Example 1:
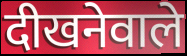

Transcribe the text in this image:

दीखनेवाले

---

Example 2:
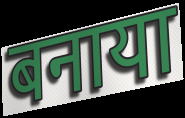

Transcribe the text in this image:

बनाया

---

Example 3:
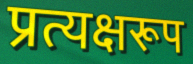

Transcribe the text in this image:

प्रत्यक्षरूप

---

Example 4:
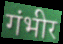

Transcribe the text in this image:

गंभीर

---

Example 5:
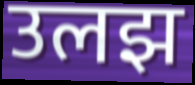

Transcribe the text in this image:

उलझ